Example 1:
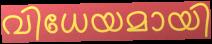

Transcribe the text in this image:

വിധേയമായി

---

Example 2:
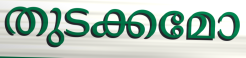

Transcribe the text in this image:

തുടക്കമോ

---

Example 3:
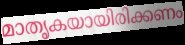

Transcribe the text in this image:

മാതൃകയായിരിക്കണം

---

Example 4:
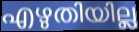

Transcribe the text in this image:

എഴുതിയില്ല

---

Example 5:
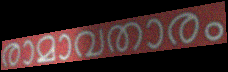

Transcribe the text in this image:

രാമാവതാരം